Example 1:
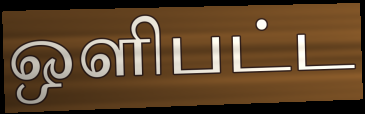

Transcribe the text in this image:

ஒளிபட்ட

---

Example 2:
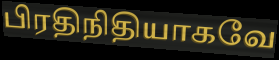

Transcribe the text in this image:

பிரதிநிதியாகவே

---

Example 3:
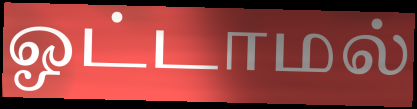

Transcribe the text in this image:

ஓட்டாமல்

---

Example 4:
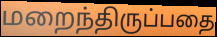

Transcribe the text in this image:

மறைந்திருப்பதை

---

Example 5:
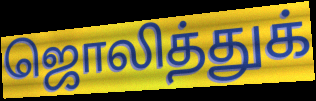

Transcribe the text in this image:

ஜொலித்துக்